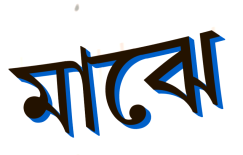
মাঝে